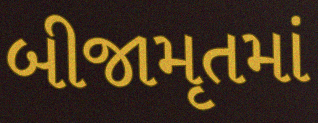
બીજામૃતમાં